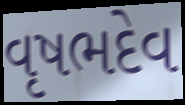
વૃષભદેવ